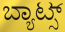
ಬ್ಯಾಟ್ಸ್